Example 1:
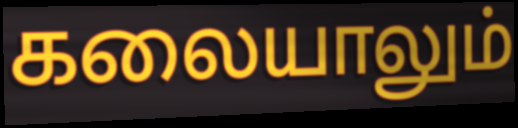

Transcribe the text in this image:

கலையாலும்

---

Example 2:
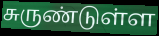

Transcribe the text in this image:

சுருண்டுள்ள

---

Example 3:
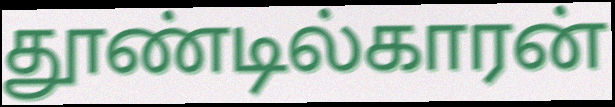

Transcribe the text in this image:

தூண்டில்காரன்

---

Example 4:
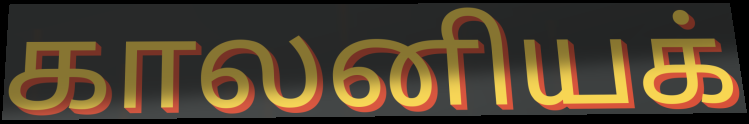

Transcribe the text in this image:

காலனியக்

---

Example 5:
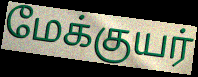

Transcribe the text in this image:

மேக்குயர்